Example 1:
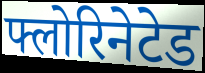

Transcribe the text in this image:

फ्लोरिनेटेड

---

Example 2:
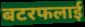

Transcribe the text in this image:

बटरफलाई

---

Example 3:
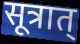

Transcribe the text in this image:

सूत्रात्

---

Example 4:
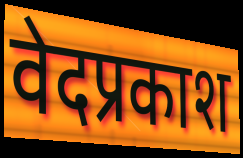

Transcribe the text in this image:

वेदप्रकाश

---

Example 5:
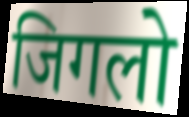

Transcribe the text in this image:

जिगलो